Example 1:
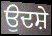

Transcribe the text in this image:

ਉਦਸ਼ੇ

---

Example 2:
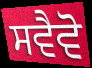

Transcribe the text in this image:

ਸਵੈਵੋ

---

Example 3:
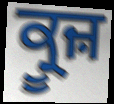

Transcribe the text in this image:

ਕ੍ਰੂਜ਼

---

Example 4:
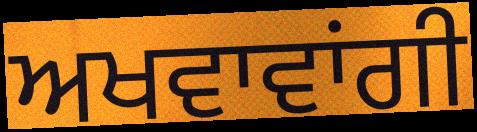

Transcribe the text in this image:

ਅਖਵਾਵਾਂਗੀ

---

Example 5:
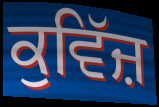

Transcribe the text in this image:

ਕੁਵਿੱਜ਼